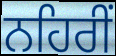
ਨਹਿਰੀਂ